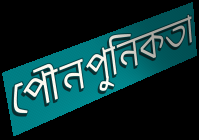
পৌনপুনিকতা